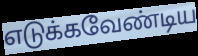
எடுக்கவேண்டிய